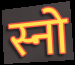
स्नो